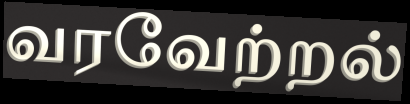
வரவேற்றல்